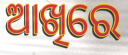
ଆଖିରେ